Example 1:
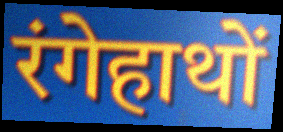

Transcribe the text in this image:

रंगेहाथों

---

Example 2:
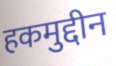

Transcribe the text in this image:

हकमुद्दीन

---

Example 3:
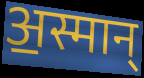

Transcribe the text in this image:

अ॒स्मान्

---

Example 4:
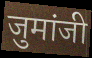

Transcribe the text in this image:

जुमांजी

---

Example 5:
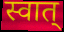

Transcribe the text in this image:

स्वात्